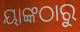
ୟାଙ୍କଠାରୁ